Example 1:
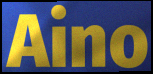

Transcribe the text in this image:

Aino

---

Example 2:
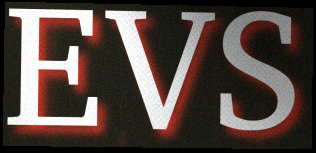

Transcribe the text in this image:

EVS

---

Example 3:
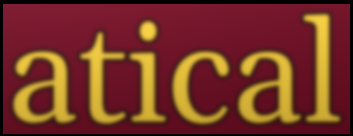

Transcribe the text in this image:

atical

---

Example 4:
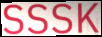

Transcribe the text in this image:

SSSK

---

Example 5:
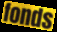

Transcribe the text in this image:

fonds